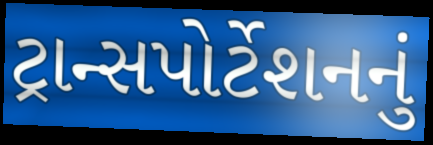
ટ્રાન્સપોર્ટેશનનું